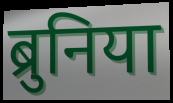
ब्रुनिया